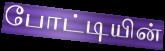
போட்டியின்